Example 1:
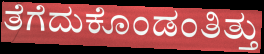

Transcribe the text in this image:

ತೆಗೆದುಕೊಂಡಂತಿತ್ತು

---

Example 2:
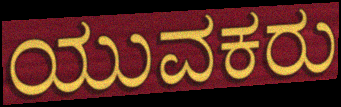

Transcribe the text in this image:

ಯುವಕರು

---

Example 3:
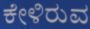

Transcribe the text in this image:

ಕೇಳಿರುವ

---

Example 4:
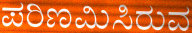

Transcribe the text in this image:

ಪರಿಣಮಿಸಿರುವ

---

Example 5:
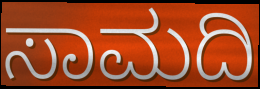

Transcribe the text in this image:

ಸಾಮದಿ